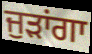
ਜੁੜਾਂਗਾ